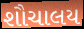
શૌચાલય